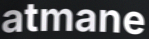
atmane